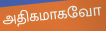
அதிகமாகவோ